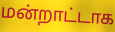
மன்றாட்டாக